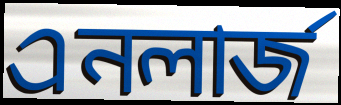
এনলার্জ